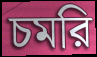
চমরি